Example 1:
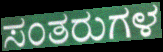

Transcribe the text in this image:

ಸಂತರುಗಳ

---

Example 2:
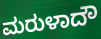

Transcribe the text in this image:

ಮರುಳಾದೌ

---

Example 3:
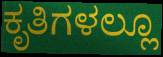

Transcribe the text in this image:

ಕೃತಿಗಳಲ್ಲೂ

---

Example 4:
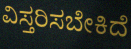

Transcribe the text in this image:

ವಿಸ್ತರಿಸಬೇಕಿದೆ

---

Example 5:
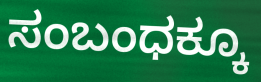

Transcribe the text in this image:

ಸಂಬಂಧಕ್ಕೂ